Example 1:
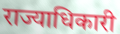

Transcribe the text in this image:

राज्याधिकारी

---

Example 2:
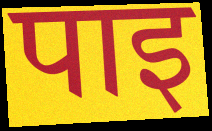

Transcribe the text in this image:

पाइ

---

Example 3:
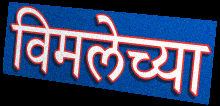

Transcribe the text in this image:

विमलेच्या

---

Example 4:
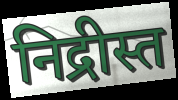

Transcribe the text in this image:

निद्रीस्त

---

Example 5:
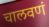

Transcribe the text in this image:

चालवणं